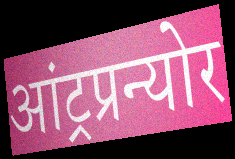
आंट्रप्रन्योर